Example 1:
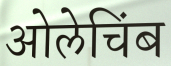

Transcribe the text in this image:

ओलेचिंब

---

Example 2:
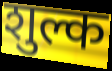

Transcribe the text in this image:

शुल्क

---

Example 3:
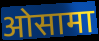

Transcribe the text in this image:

ओसामा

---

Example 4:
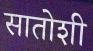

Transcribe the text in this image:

सातोशी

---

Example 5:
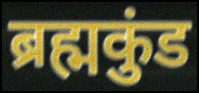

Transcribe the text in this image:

ब्रह्मकुंड